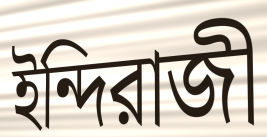
ইন্দিরাজী